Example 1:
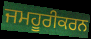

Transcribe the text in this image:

ਜਮਹੂਰੀਕਰਨ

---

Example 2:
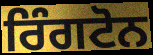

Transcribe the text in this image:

ਰਿੰਗਟੋਨ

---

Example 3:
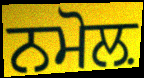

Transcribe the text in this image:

ਨਮੋਲ਼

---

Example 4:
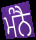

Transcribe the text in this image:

ਮੰਨੈ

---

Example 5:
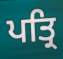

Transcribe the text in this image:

ਪਤ੍ਰਿ